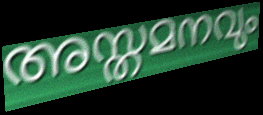
അസ്തമനവും